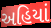
અહિયાં